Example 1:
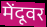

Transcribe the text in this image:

मेंदूवर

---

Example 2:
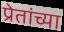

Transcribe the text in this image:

प्रेतांच्या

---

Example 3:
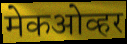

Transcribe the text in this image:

मेकओव्हर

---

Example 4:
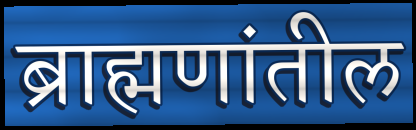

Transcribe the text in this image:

ब्राह्मणांतील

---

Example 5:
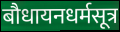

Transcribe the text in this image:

बौधायनधर्मसूत्र